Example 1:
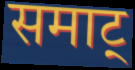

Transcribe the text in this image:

समाट्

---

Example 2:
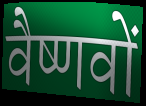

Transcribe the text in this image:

वैष्णवों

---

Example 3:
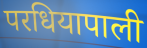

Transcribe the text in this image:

परधियापाली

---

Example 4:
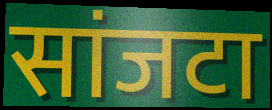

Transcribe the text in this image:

सांजटा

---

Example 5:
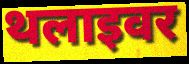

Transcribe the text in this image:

थलाइवर